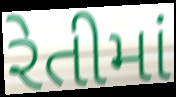
રેતીમાં